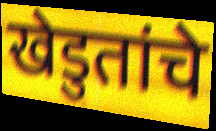
खेडुतांचे